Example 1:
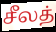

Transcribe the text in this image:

சீலத்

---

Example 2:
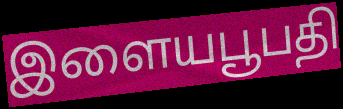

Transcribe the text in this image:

இளையபூபதி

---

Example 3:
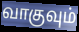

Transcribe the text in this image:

வாகுவும்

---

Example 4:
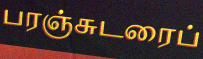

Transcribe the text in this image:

பரஞ்சுடரைப்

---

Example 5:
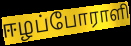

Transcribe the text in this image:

ஈழப்போராளி